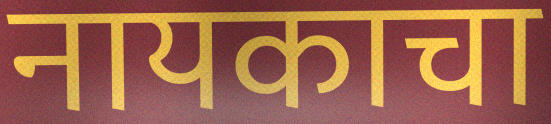
नायकाचा